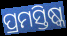
ପ୍ରମସ୍ତିଷ୍କ